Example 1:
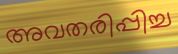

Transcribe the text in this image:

അവതരിപ്പിച്ച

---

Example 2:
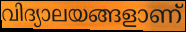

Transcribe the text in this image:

വിദ്യാലയങ്ങളാണ്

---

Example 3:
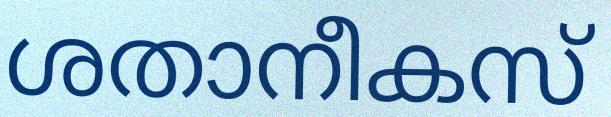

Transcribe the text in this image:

ശതാനീകസ്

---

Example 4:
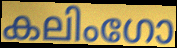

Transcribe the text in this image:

കലിംഗോ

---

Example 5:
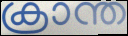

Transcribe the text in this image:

ക്രാന്ത